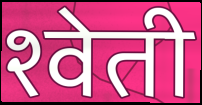
श्वेती